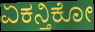
ಏಕನ್ತಿಕೋ